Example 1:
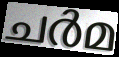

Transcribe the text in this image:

ചർമ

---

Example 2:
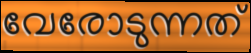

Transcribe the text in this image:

വേരോടുന്നത്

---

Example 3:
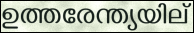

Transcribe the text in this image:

ഉത്തരേന്ത്യയില്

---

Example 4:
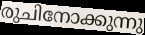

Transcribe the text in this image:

രുചിനോക്കുന്നു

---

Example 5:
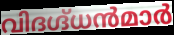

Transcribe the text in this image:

വിദഗ്ദ്ധൻമാർ